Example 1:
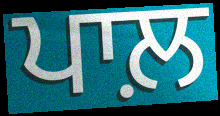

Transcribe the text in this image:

ਪਾਲ਼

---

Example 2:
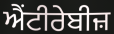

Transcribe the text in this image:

ਐਂਟੀਰੇਬੀਜ਼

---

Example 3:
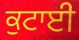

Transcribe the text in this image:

ਕੁਟਾਈ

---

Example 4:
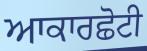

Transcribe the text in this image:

ਆਕਾਰਛੋਟੀ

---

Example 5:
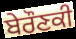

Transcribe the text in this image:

ਬੇਰੌਣਕੀ